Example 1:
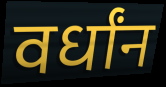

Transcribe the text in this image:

वर्धांन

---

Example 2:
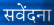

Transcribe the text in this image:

सवेंदना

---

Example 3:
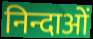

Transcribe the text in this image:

निन्दाओं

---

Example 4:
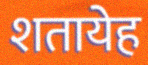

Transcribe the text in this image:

शतायेह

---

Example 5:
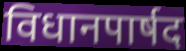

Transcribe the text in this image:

विधानपार्षद